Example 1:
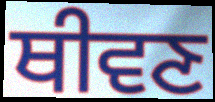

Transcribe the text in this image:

ਥੀਵਣ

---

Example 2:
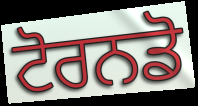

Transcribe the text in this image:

ਟੋਰਨਡੋ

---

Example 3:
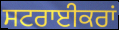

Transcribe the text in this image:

ਸਟਰਾਈਕਰਾਂ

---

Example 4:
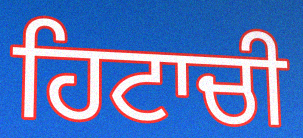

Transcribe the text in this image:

ਹਿਟਾਚੀ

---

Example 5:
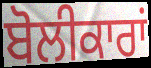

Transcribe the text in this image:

ਬੋਲੀਕਾਰਾਂ